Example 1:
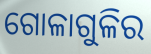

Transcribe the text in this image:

ଗୋଳାଗୁଳିର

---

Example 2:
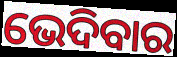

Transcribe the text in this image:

ଭେଦିବାର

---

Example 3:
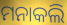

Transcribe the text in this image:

ମନାକଲି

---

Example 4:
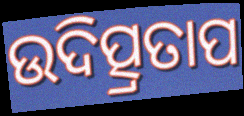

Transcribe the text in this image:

ଉଦିତ୍ପ୍ରତାପ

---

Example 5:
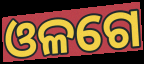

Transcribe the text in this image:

ଓଳଗେ